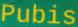
Pubis